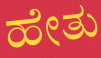
ಹೇತು